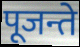
पूजन्ते